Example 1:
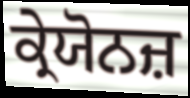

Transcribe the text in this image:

ਕ੍ਰੇਯੋਨਜ਼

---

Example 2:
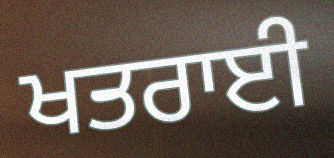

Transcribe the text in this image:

ਖਤਰਾਈ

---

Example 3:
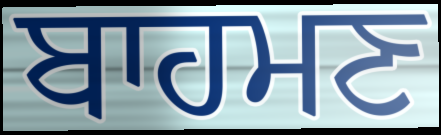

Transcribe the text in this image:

ਬਾਹਮਣ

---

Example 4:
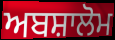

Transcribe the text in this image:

ਅਬਸ਼ਾਲੋਮ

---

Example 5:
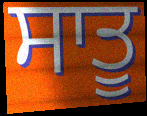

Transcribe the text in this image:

ਸਾਤੂ